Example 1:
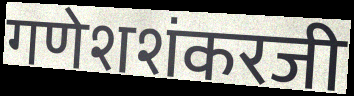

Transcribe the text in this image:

गणेशशंकरजी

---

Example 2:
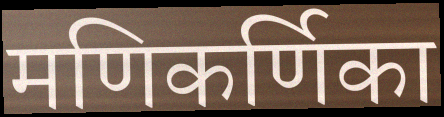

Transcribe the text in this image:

मणिकर्णिका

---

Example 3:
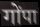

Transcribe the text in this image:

गोंपा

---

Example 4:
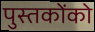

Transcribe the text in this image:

पुस्तकोंको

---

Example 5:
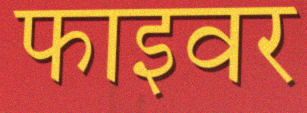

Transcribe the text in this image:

फाइवर